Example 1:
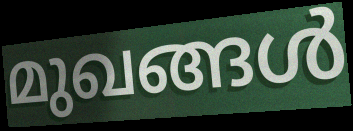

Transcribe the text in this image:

മുഖങ്ങൾ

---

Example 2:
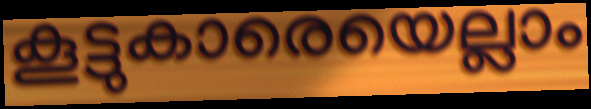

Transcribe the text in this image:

കൂട്ടുകാരെയെല്ലാം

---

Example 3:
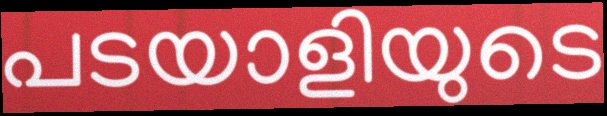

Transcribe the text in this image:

പടയാളിയുടെ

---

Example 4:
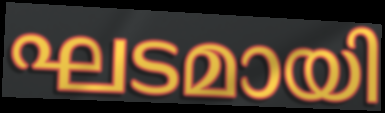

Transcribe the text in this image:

ഘടമായി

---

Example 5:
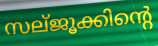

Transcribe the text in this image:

സല്ജൂക്കിന്റെ